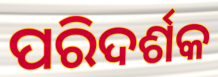
ପରିଦର୍ଶକ